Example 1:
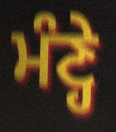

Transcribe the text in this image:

ਮੰਣ੍ਹੇ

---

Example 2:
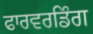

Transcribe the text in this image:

ਫਾਰਵਰਡਿੰਗ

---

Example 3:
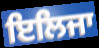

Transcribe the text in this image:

ਇਲਿਜਾ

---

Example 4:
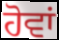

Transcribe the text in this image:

ਹੋਵਾਂ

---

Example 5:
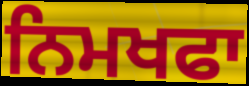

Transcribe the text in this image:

ਨਿਮਖਫਾ